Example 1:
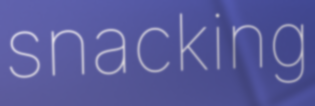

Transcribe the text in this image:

snacking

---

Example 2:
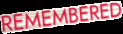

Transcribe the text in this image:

REMEMBERED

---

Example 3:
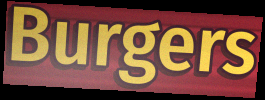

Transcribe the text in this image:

Burgers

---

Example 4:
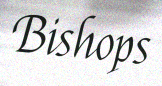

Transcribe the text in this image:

Bishops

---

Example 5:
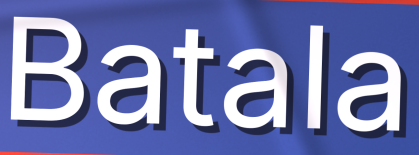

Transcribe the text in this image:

Batala